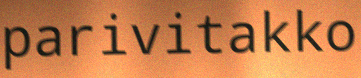
parivitakko